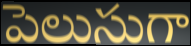
పెలుసుగా